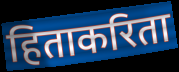
हिताकरिता